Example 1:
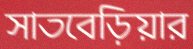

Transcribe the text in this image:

সাতবেড়িয়ার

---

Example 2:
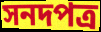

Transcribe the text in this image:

সনদপত্র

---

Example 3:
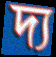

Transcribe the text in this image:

দ্য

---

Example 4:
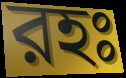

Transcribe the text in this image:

রহঃ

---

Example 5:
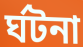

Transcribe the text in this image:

র্ঘটনা